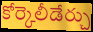
కోర్కెలీడేర్చు